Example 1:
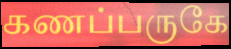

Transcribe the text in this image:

கணப்பருகே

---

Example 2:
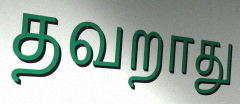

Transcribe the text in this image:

தவறாது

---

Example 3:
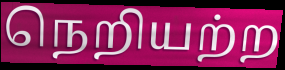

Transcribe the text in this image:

நெறியற்ற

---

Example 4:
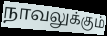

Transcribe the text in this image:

நாவலுக்கும்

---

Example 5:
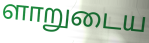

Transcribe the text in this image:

ளாறுடைய